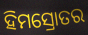
ହିମସ୍ରୋତର